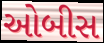
ઓબીસ